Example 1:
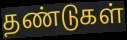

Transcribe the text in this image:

தண்டுகள்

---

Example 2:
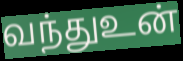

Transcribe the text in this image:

வந்துஉன்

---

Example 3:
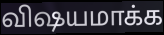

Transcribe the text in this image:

விஷயமாக்க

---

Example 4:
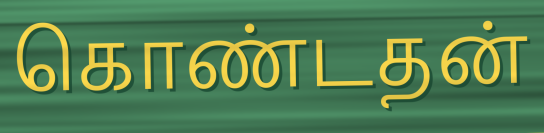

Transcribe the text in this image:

கொண்டதன்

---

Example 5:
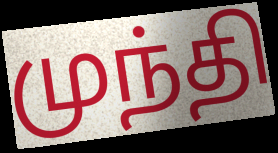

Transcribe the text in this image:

முந்தி